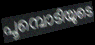
പൂമ്പൊടിയുടെ